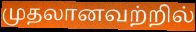
முதலானவற்றில்